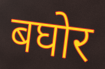
बघोर